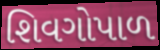
શિવગોપાળ